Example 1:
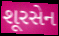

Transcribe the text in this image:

શૂરસેન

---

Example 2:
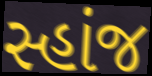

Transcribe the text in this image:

સ્હાંજ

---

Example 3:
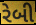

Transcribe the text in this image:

રેબી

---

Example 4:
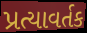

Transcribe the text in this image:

પ્રત્યાવર્તક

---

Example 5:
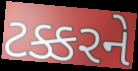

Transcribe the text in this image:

ટક્કરને